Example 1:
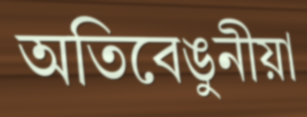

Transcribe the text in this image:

অতিবেঙুনীয়া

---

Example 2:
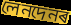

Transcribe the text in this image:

লেনদেনৰ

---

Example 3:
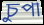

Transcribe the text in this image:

চুপা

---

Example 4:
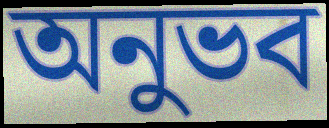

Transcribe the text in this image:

অনুভব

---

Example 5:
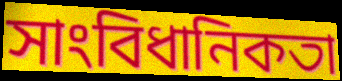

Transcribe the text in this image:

সাংবিধানিকতা